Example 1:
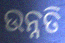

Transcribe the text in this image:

ଉନ୍ନତି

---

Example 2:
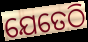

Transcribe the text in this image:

ଯେତେଠି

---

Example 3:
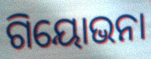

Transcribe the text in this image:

ଗିୟୋଭନା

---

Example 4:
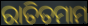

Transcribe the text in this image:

ରାତିତମାମ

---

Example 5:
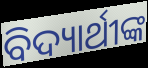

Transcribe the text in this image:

ବିଦ୍ୟାର୍ଥୀଙ୍କ